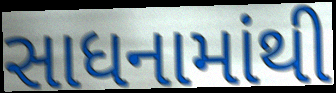
સાધનામાંથી